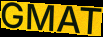
GMAT